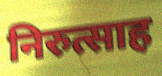
निरुत्साह